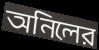
অনিলের